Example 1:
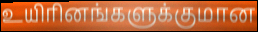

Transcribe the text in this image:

உயிரினங்களுக்குமான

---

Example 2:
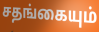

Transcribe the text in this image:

சதங்கையும்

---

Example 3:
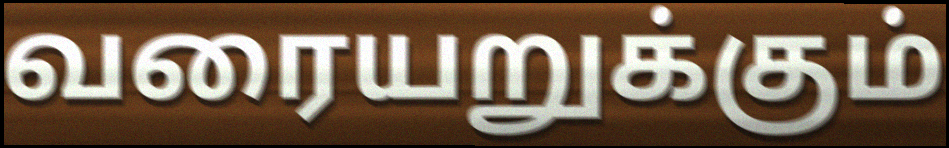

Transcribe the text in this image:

வரையறுக்கும்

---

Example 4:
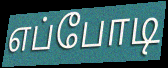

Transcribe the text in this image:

எப்போடி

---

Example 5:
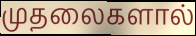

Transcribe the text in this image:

முதலைகளால்